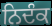
ਨਿਦੰਕ